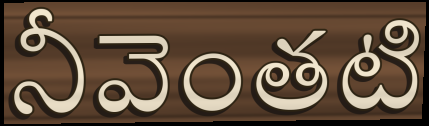
నీవెంతటి